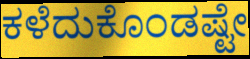
ಕಳೆದುಕೊಂಡಷ್ಟೇ